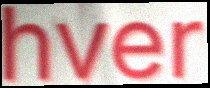
hver